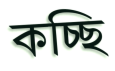
কচ্ছি